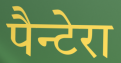
पैन्टेरा